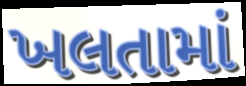
ખલતામાં